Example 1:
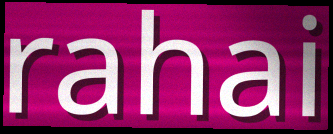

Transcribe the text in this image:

rahai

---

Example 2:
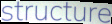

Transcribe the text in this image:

structure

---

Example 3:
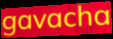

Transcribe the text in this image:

gavacha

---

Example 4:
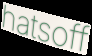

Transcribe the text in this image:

hatsoff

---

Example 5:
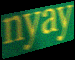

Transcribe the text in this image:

nyay